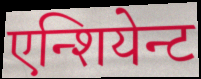
एन्शियेन्ट